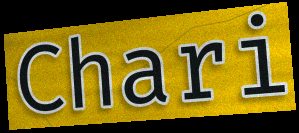
Chari